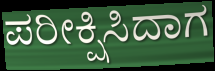
ಪರೀಕ್ಷಿಸಿದಾಗ